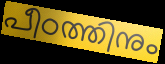
പീഠത്തിനും